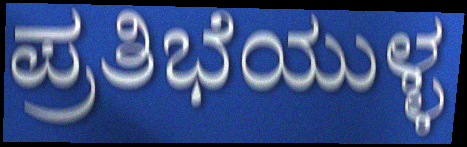
ಪ್ರತಿಭೆಯುಳ್ಳ